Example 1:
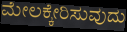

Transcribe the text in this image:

ಮೇಲಕ್ಕೇರಿಸುವುದು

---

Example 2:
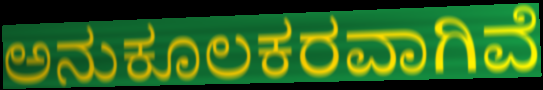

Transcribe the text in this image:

ಅನುಕೂಲಕರವಾಗಿವೆ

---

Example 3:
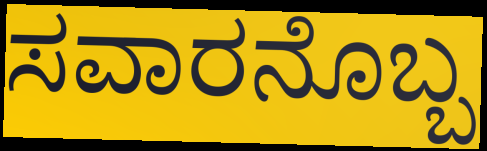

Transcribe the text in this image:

ಸವಾರನೊಬ್ಬ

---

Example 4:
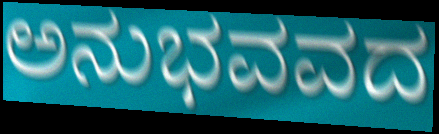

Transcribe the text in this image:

ಅನುಭವವದ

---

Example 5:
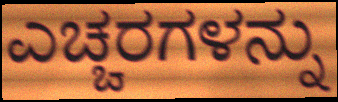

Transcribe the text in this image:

ಎಚ್ಚರಗಳನ್ನು